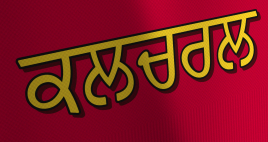
ਕਲਚਰਲ